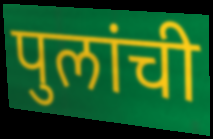
पुलांची